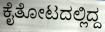
ಕೈತೋಟದಲ್ಲಿದ್ದ